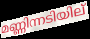
മണ്ണിന്നടിയില്